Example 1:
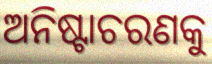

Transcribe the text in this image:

ଅନିଷ୍ଟାଚରଣକୁ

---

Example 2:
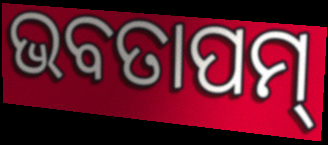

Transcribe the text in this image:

ଭବତାପମ୍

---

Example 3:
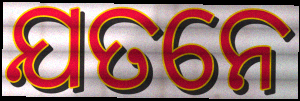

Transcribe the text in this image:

ଯତନେ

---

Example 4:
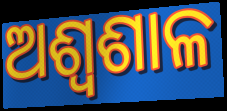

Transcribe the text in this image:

ଅଶ୍ୱଶାଳ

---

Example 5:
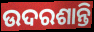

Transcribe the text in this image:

ଉଦରଶାନ୍ତି